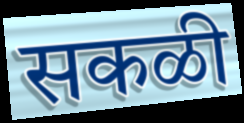
सकळी